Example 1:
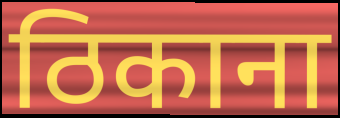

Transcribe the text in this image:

ठिकाना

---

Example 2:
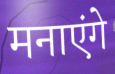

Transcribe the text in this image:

मनाएंगे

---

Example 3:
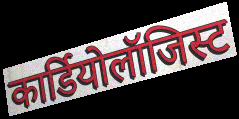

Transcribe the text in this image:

कार्डियोलॉजिस्ट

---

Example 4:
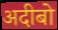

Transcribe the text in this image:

अदीबो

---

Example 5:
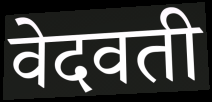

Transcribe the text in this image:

वेदवती